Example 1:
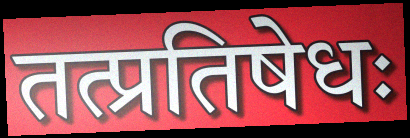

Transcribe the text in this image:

तत्प्रतिषेधः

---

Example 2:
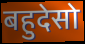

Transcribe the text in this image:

बहुदेसो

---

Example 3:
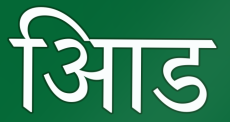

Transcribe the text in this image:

आिड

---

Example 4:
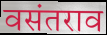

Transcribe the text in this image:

वसंतराव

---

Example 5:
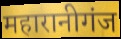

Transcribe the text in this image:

महारानीगंज